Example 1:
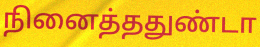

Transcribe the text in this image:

நினைத்ததுண்டா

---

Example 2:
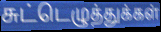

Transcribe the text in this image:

சுட்டெழுத்துக்கள்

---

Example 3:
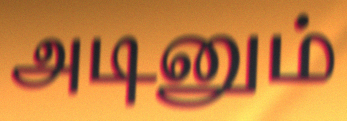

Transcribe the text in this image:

அடினும்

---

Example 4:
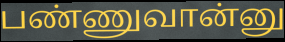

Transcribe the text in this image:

பண்ணுவான்னு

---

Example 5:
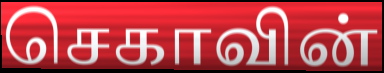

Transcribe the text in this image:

செகாவின்